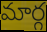
మార్గ